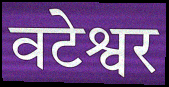
वटेश्वर